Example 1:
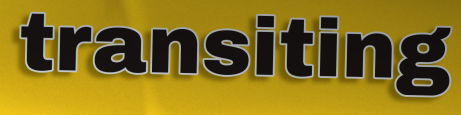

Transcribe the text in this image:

transiting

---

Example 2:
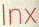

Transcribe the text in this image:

lnx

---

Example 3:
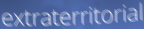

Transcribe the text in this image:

extraterritorial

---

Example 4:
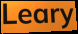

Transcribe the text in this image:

Leary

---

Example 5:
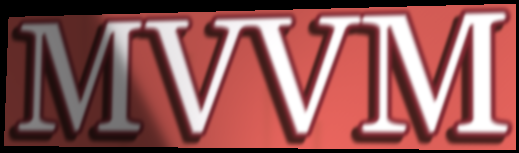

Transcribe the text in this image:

MVVM